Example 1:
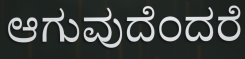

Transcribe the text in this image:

ಆಗುವುದೆಂದರೆ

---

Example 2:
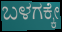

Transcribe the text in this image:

ಬಳಗಕ್ಕೇ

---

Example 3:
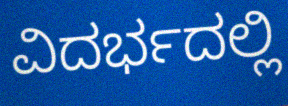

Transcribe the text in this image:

ವಿದರ್ಭದಲ್ಲಿ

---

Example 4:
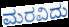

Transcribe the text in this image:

ಮರವಿದು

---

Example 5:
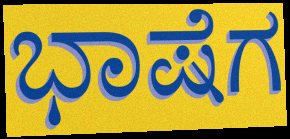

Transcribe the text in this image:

ಭಾಷೆಗ